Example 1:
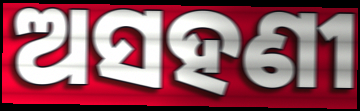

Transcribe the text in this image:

ଅସହଣୀ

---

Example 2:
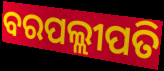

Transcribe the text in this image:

ବରପଲ୍ଲୀପତି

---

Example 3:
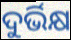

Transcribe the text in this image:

ଦୁର୍ଭିକ୍ଷ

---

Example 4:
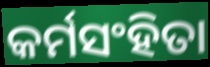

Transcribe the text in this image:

କର୍ମସଂହିତା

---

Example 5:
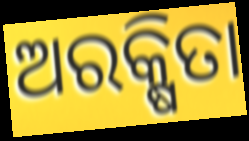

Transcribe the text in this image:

ଅରକ୍ଷିତା